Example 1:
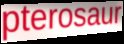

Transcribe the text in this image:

pterosaur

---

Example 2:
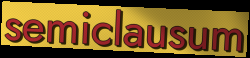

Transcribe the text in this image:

semiclausum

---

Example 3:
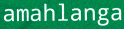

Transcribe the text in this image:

amahlanga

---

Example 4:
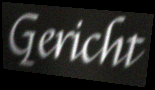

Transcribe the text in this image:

Gericht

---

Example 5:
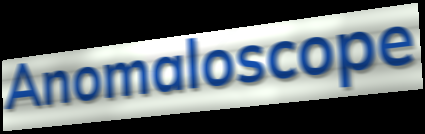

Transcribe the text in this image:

Anomaloscope